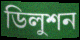
ডিলুশন